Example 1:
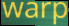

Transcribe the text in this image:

warp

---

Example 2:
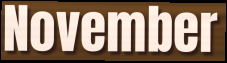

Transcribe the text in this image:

November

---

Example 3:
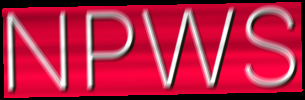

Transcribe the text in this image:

NPWS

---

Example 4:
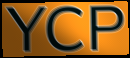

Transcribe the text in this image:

YCP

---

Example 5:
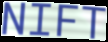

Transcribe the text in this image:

NIFT